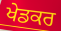
ਖੇਡਕਰ